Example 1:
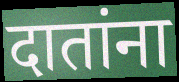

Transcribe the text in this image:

दातांना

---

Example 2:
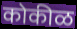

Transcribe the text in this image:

कोकीळ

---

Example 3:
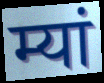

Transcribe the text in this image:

म्यां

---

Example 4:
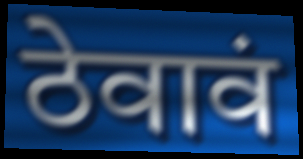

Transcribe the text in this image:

ठेवावं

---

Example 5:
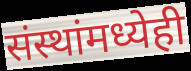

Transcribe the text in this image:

संस्थांमध्येही